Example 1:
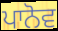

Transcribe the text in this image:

ਪਾਨੋਵ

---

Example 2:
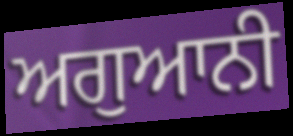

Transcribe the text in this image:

ਅਗੁਆਨੀ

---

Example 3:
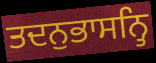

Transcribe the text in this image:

ਤਦਨੁਭਾਸਨ੍ਤਿ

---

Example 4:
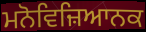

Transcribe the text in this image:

ਮਨੋਵਿਜ਼ਿਆਨਕ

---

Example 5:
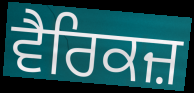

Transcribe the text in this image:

ਵੈਰਿਕਜ਼